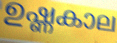
ഉഷ്ണകാല